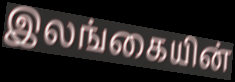
இலங்கையின்